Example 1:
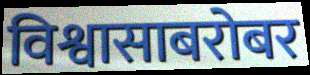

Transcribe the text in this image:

विश्वासाबरोबर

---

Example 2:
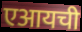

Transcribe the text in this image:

एआयची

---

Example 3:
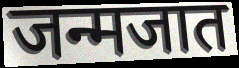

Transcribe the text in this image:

जन्मजात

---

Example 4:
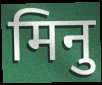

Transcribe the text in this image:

मिनु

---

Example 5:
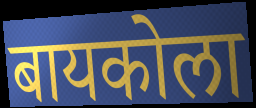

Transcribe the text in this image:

बायकोला